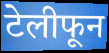
टेलीफून